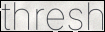
thresh